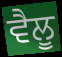
ਵੈਲੂ